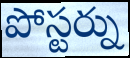
పోస్టర్ను